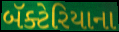
બૅક્ટેરિયાના